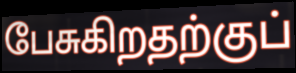
பேசுகிறதற்குப்